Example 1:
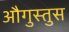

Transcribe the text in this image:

औगुस्तुस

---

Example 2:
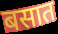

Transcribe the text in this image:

बसात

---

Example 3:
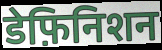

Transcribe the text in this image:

डेफ़िनिशन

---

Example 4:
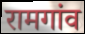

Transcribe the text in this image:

रामगांव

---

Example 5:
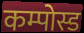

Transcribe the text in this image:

कम्पोस्ड